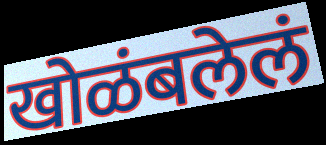
खोळंबलेलं